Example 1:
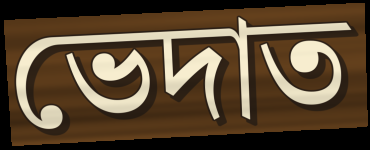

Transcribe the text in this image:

ভেদাত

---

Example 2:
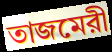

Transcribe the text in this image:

তাজমেরী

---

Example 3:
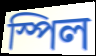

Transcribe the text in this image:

স্পিল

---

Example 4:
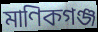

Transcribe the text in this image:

মাণিকগঞ্জ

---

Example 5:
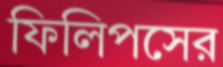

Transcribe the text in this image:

ফিলিপসের